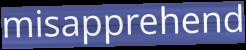
misapprehend